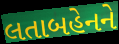
લતાબહેનને